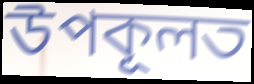
উপকূলত